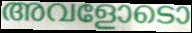
അവളോടൊ